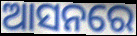
ଆସନରେ